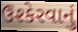
ઉશ્કેરવાનું